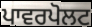
ਪਾਵਰਪੋਲਟ